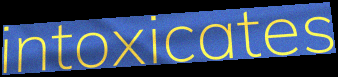
intoxicates